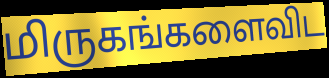
மிருகங்களைவிட